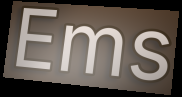
Ems